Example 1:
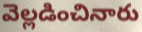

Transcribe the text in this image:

వెల్లడించినారు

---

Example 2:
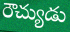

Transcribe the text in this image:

రౌచ్యుడు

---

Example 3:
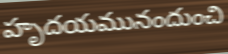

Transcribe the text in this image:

హృదయమునందుంచి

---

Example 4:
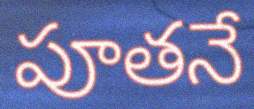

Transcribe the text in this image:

పూతనే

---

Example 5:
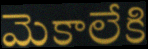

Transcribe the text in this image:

మెకాలేకి